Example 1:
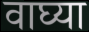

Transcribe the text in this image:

वाघ्या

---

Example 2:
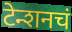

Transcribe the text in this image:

टेन्शनचं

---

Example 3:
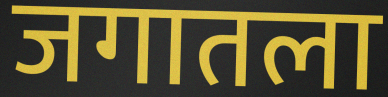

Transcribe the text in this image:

जगातला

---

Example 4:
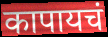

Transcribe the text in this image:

कापायचं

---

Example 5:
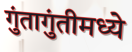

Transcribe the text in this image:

गुंतागुंतीमध्ये